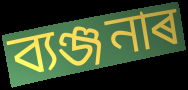
ব্যঞ্জনাৰ